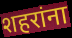
शहरांना